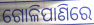
ଗୋଳିପାଣିରେ